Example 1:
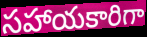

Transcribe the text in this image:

సహాయకారిగా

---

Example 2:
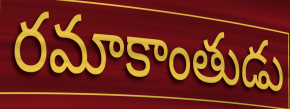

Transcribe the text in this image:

రమాకాంతుడు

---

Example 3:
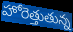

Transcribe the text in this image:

హోరెత్తుతున్న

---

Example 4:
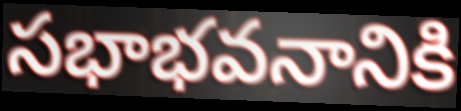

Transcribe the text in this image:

సభాభవనానికి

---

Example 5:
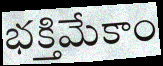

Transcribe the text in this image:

భక్తిమేకాం